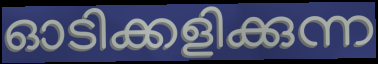
ഓടിക്കളിക്കുന്ന